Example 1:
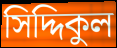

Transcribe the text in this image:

সিদ্দিকুল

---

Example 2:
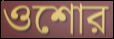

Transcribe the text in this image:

ওশোর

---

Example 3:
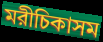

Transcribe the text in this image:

মরীচিকাসম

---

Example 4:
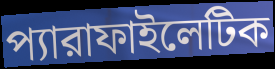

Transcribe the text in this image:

প্যারাফাইলেটিক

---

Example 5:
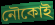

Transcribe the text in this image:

নৌকোই